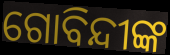
ଗୋବିନ୍ଦୀଙ୍କ